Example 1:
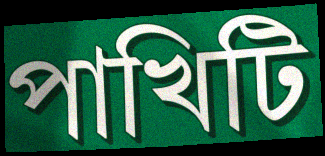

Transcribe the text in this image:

পাখিটি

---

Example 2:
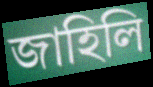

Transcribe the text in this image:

জাহিলি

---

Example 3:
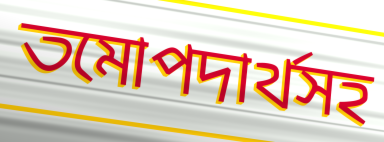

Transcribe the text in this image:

তমোপদার্থসহ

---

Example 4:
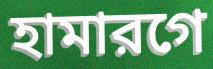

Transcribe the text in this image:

হামারগে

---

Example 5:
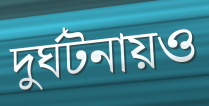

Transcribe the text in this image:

দুর্ঘটনায়ও